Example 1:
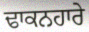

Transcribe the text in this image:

ਢਾਕਨਹਾਰੇ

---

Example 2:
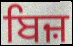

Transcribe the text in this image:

ਬਿਜ਼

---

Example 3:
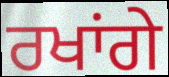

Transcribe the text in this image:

ਰਖਾਂਗੇ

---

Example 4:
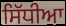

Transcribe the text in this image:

ਸਿੱਧੀਆ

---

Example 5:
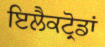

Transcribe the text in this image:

ਇਲੈਕਟ੍ਰੋਡਾਂ